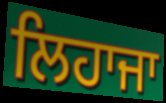
ਲਿਹਾਜਾ